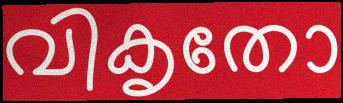
വികൃതോ